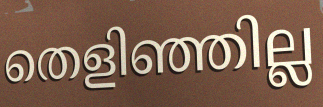
തെളിഞ്ഞില്ല